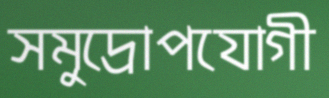
সমুদ্রোপযোগী